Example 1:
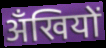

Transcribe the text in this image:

अँखियों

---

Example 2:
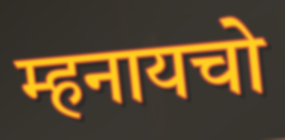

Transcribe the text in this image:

म्हनायचो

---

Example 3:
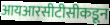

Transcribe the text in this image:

आयआरसीटीसीकडून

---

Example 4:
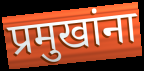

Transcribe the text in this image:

प्रमुखांना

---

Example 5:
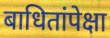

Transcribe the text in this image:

बाधितांपेक्षा